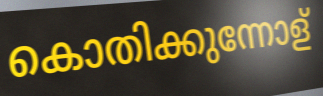
കൊതിക്കുന്നോള്